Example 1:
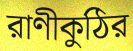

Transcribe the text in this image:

রাণীকুঠির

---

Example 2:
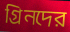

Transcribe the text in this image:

গ্রিনদের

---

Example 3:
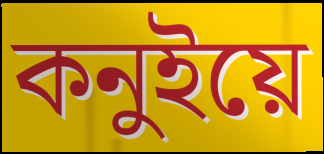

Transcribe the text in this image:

কনুইয়ে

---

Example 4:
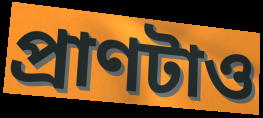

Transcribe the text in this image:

প্রাণটাও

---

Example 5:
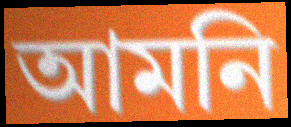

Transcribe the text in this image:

আমনি